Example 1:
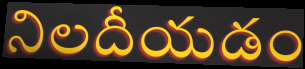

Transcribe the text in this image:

నిలదీయడం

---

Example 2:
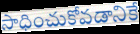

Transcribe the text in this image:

సాధించుకోవడానికే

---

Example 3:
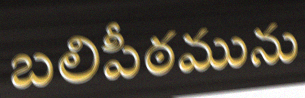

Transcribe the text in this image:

బలిపీఠమును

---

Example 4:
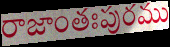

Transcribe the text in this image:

రాజాంతఃపురము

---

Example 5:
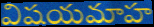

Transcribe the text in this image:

విషయమాహ